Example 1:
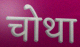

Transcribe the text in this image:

चोथा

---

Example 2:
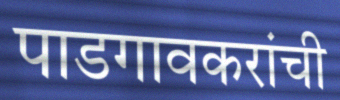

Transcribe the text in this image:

पाडगावकरांची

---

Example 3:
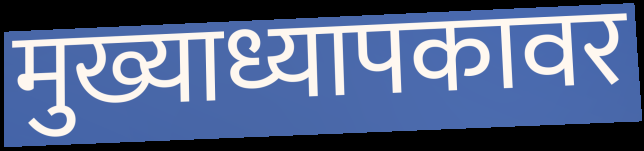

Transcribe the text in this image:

मुख्याध्यापकावर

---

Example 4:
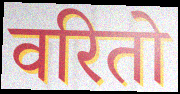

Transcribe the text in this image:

वरितो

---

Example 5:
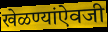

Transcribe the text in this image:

खेळण्यांऐवजी